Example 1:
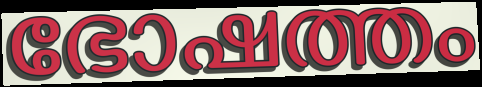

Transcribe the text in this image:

ഭോഷത്തം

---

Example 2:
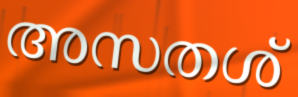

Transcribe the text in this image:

അസതശ്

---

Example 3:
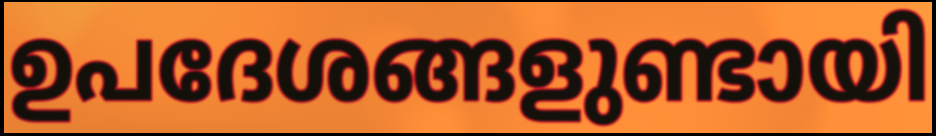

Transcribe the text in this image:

ഉപദേശങ്ങളുണ്ടായി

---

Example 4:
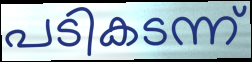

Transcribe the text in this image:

പടികടന്ന്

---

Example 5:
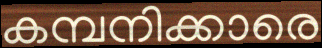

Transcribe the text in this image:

കമ്പനിക്കാരെ